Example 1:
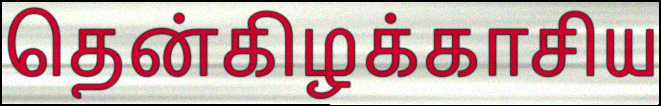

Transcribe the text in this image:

தென்கிழக்காசிய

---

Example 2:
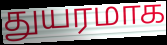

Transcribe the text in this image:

துயரமாக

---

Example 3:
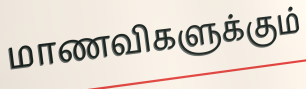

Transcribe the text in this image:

மாணவிகளுக்கும்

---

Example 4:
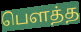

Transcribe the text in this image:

பௌத்த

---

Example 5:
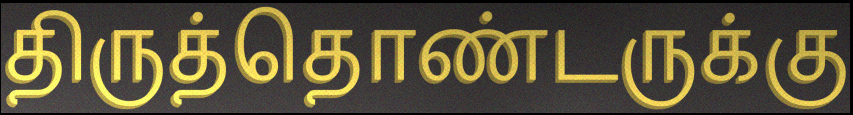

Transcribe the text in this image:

திருத்தொண்டருக்கு